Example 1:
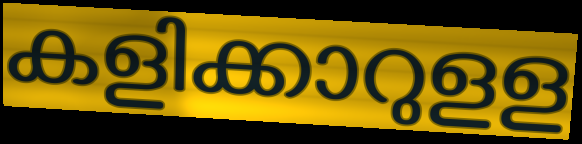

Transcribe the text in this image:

കളിക്കാറുളള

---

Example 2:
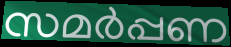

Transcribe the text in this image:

സമർപ്പണ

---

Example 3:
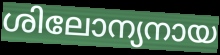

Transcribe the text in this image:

ശിലോന്യനായ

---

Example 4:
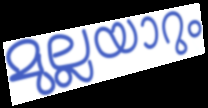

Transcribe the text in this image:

മുല്ലയാറും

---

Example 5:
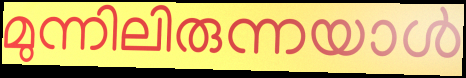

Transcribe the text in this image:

മുന്നിലിരുന്നയാൾ